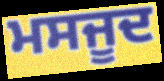
ਮਸਜੂਦ